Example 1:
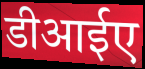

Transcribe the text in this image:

डीआईए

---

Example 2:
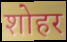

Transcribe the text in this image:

शोहर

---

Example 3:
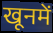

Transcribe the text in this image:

खूनमें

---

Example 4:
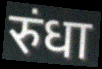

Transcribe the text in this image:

रुंधा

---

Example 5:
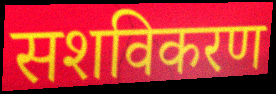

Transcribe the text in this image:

सशविकरण